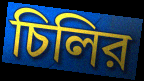
চিলির